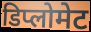
डिप्लोमेट